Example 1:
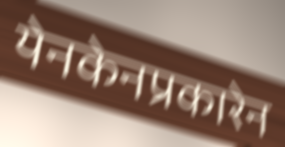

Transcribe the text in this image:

येनकेनप्रकारेन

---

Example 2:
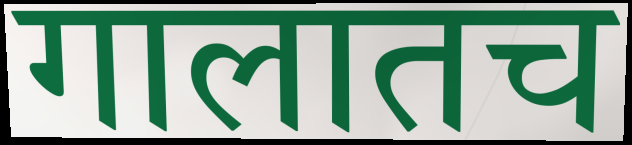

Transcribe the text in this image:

गालातच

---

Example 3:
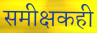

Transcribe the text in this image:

समीक्षकही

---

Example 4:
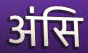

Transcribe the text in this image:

अ॑सि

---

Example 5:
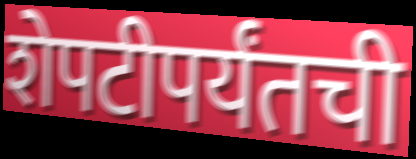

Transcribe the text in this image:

शेपटीपर्यंतची